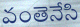
వంతెనేసి